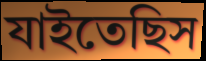
যাইতেছিস